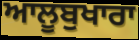
ਆਲੂਬੁਖਾਰਾ